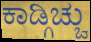
ಕಾಡ್ಗಿಚ್ಚು